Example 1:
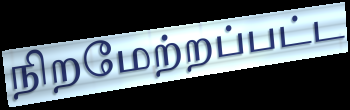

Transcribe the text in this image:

நிறமேற்றப்பட்ட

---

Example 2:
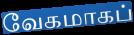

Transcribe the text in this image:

வேகமாகப்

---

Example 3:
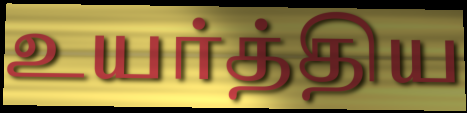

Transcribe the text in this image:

உயர்த்திய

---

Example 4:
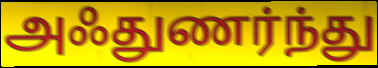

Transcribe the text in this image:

அஃதுணர்ந்து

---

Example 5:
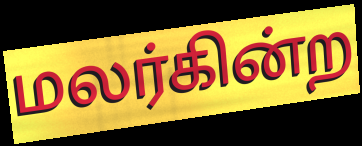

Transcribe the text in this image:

மலர்கின்ற